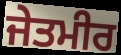
ਜੇਤਮੀਰ